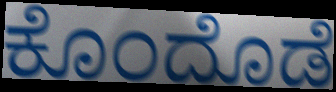
ಕೊಂದೊಡೆ